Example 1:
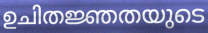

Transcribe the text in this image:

ഉചിതജ്ഞതയുടെ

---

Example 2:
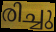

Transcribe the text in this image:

രിച്ചു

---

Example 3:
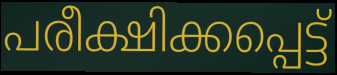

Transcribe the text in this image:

പരീക്ഷിക്കപ്പെട്ട്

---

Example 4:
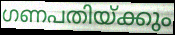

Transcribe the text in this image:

ഗണപതിയ്ക്കും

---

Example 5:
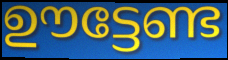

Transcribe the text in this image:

ഊട്ടേണ്ട